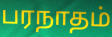
பரநாதம்